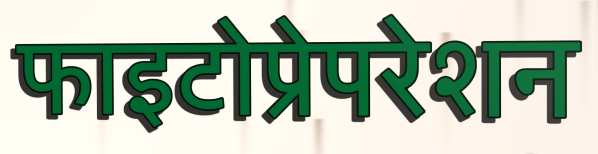
फाइटोप्रेपरेशन